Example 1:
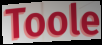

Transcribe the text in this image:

Toole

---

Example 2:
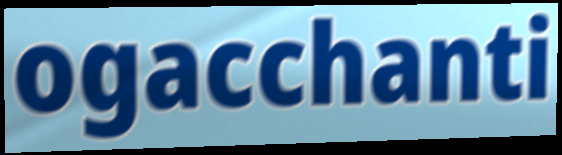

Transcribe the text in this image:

ogacchanti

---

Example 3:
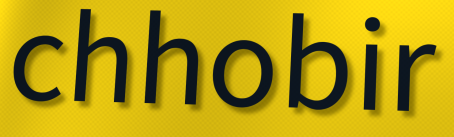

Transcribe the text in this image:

chhobir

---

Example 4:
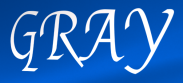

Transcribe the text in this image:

GRAY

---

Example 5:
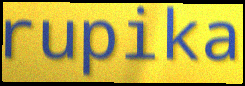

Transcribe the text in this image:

rupika